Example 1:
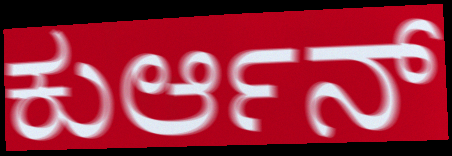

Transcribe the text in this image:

ಕುರ್ಆನ್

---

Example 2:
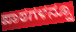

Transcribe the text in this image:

ಪಾಠಗಳನ್ನೂ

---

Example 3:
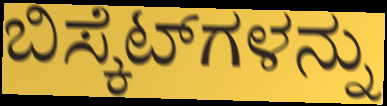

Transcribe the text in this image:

ಬಿಸ್ಕೆಟ್‌ಗಳನ್ನು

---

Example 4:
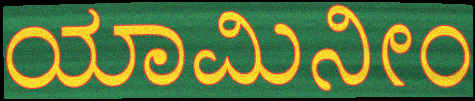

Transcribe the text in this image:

ಯಾಮಿನೀಂ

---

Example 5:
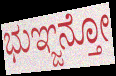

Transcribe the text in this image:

ಭುಞ್ಜನ್ತೋ